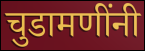
चुडामणींनी